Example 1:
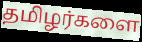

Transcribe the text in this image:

தமிழர்களை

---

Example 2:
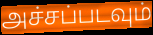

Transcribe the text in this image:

அச்சப்படவும்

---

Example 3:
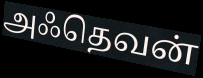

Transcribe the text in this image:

அஃதெவன்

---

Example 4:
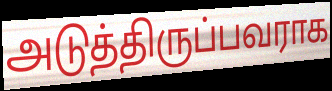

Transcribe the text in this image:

அடுத்திருப்பவராக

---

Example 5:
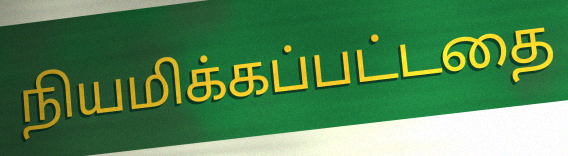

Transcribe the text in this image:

நியமிக்கப்பட்டதை